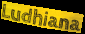
Ludhiana